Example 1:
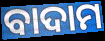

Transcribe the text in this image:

ବାଦାମ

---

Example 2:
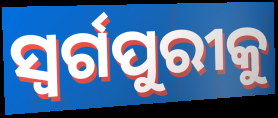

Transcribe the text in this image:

ସ୍ୱର୍ଗପୁରୀକୁ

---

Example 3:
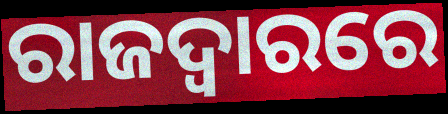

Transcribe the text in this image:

ରାଜଦ୍ୱାରରେ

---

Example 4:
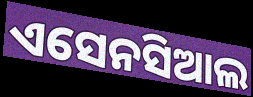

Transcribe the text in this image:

ଏସେନସିଆଲ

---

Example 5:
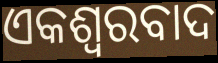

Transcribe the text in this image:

ଏକଶ୍ୱରବାଦ